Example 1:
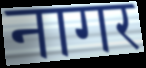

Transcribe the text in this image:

नागर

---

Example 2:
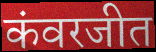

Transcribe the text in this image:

कंवरजीत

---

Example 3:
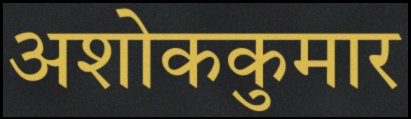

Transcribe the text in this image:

अशोककुमार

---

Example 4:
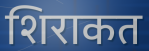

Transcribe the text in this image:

शिराकत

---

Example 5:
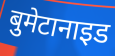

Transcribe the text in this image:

बुमेटानाइड